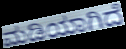
ಮಡಿಯಾಗಿದೆ